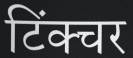
टिंक्चर